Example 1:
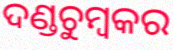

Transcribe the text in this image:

ଦଣ୍ଡଚୁମ୍ବକର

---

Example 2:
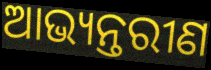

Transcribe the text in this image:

ଆଭ୍ୟନ୍ତରୀଣ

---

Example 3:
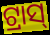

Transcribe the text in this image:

ଟ୍ରାସ୍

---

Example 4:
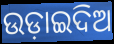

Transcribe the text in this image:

ଉଡ଼ାଇଦିଅ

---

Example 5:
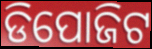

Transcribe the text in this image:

ଡିପୋଜିଟ